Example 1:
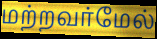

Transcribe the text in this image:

மற்றவர்மேல்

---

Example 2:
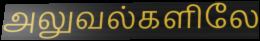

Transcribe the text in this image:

அலுவல்களிலே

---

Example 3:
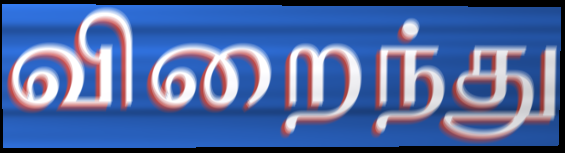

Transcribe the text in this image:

விறைந்து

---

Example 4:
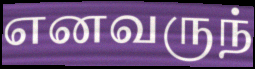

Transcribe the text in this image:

எனவருந்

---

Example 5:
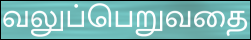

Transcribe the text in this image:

வலுப்பெறுவதை